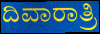
ದಿವಾರಾತ್ರಿ